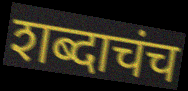
शब्दाचंच